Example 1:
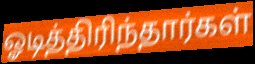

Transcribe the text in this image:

ஓடித்திரிந்தார்கள்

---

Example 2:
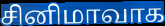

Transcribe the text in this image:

சினிமாவாக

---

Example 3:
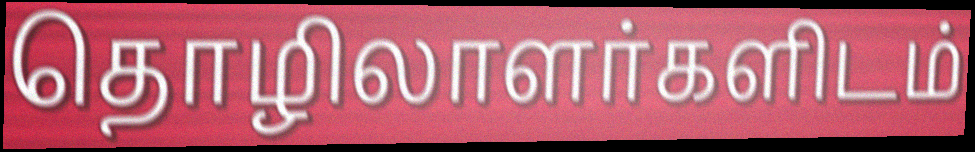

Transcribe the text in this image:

தொழிலாளர்களிடம்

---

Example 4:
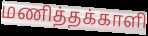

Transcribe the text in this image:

மணித்தக்காளி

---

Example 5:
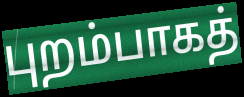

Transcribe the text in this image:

புறம்பாகத்